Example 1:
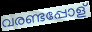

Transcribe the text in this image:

വരണ്ടപ്പോള്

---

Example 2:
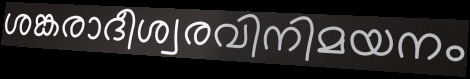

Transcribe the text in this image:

ശങ്കരാദീശ്വരവിനിമയനം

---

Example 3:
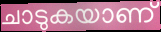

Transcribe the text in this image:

ചാടുകയാണ്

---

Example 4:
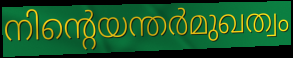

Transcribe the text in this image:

നിന്റെയന്തർമുഖത്വം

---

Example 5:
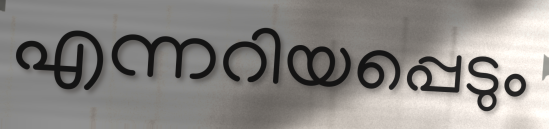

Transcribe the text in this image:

എന്നറിയപ്പെടും